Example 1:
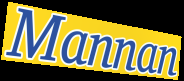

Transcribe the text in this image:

Mannan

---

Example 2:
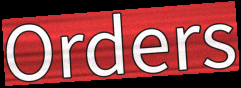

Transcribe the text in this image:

Orders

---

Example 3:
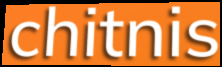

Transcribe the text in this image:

chitnis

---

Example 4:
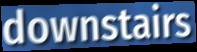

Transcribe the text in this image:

downstairs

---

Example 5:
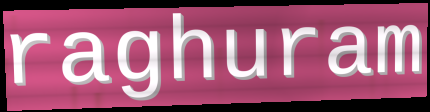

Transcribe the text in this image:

raghuram